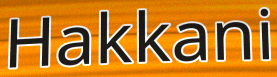
Hakkani